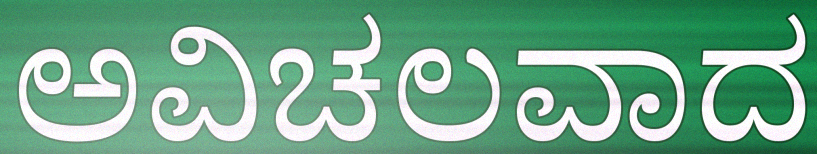
ಅವಿಚಲವಾದ